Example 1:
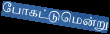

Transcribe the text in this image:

போகட்டுமென்று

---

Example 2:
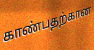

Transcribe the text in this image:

காண்பதற்கான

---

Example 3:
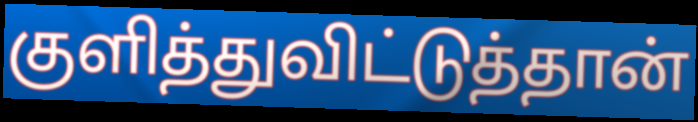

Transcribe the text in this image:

குளித்துவிட்டுத்தான்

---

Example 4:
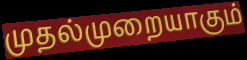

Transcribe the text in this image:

முதல்முறையாகும்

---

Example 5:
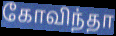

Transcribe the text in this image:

கோவிந்தா